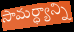
సామర్ధ్యాన్ని